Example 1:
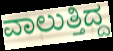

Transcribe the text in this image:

ವಾಲುತ್ತಿದ್ದ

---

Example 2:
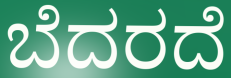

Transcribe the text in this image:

ಬೆದರದೆ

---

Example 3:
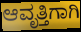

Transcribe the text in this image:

ಆವೃತ್ತಿಗಾಗಿ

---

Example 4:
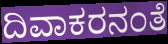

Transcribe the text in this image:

ದಿವಾಕರನಂತೆ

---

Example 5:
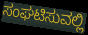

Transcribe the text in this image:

ಸಂಘಟಿಸುವಲ್ಲಿ